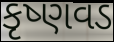
કૃષ્ણવડ